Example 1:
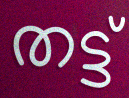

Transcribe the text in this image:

തട്ട്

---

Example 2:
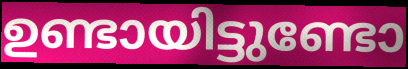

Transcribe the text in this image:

ഉണ്ടായിട്ടുണ്ടോ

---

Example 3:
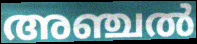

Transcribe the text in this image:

അഞ്ചൽ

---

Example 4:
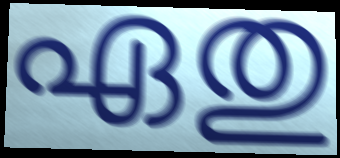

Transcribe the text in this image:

ഏതു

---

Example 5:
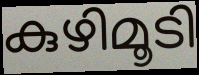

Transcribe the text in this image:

കുഴിമൂടി